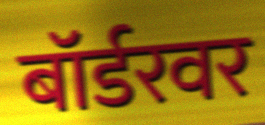
बॉर्डरवर